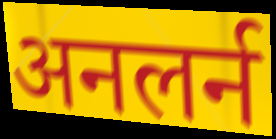
अनलर्न